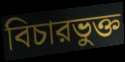
বিচারভুক্ত